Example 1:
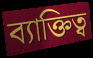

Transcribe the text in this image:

ব্যাক্তিত্ব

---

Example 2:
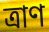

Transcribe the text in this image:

ত্রাণ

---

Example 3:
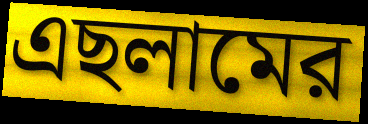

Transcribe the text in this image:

এছলামের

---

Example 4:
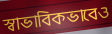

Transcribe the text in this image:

স্বাভাবিকভাবেও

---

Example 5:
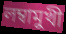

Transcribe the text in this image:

লম্বামুখী